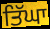
ਤਿੱਘਾ